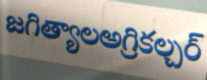
జగిత్యాలఅగ్రికల్చర్